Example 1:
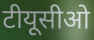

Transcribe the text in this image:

टीयूसीओ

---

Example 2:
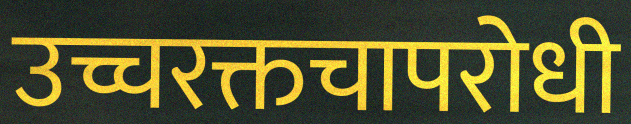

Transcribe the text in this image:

उच्चरक्तचापरोधी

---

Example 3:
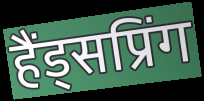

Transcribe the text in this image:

हैंड्सप्रिंग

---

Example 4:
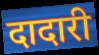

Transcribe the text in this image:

दादारी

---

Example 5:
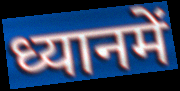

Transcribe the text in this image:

ध्यानमें